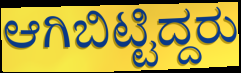
ಆಗಿಬಿಟ್ಟಿದ್ದರು